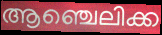
ആഞ്ചെലിക്ക